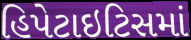
હિપેટાઇટિસમાં